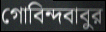
গোবিন্দবাবুর